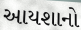
આયશાનો